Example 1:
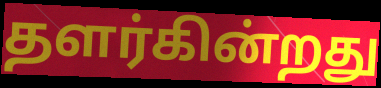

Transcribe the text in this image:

தளர்கின்றது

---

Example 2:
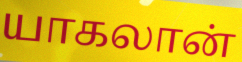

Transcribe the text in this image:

யாகலான்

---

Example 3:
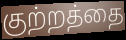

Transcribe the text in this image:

குற்றத்தை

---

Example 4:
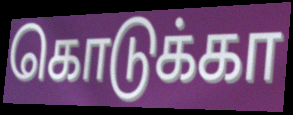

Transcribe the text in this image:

கொடுக்கா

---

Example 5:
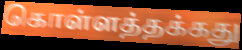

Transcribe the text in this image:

கொள்ளத்தக்கது